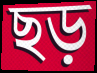
ছড়